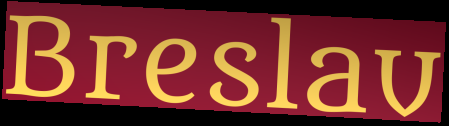
Breslau